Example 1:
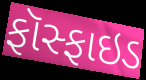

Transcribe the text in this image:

ફૉસ્ફાઇડ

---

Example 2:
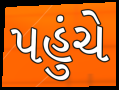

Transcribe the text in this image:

પહુંચે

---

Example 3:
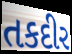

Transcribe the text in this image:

તકદીર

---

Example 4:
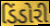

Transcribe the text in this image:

ડિંડોરી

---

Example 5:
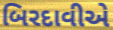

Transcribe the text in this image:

બિરદાવીએ